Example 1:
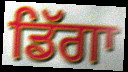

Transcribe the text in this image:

ਡਿੱਗਾ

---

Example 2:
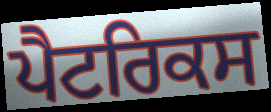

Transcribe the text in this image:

ਪੈਟਰਿਕਸ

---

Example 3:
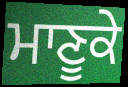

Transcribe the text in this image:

ਮਾਣੂਕੇ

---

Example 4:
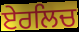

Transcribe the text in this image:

ਏਰਲਿਚ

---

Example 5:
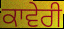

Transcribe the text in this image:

ਕਾਵੇਰੀ